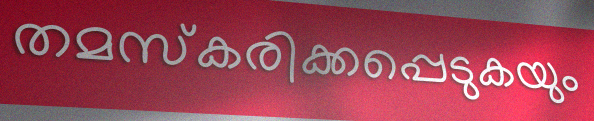
തമസ്കരിക്കപ്പെടുകയും